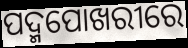
ପଦ୍ମପୋଖରୀରେ